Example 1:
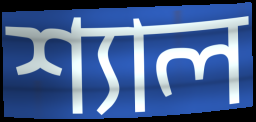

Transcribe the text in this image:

শ্যাল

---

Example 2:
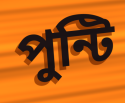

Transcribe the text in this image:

পুন্টি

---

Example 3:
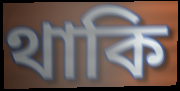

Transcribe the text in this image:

থাকি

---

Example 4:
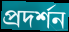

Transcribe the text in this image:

প্রদর্শন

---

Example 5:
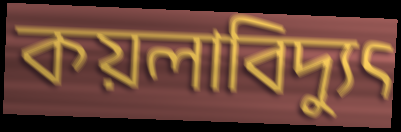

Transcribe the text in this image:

কয়লাবিদ্যুৎ